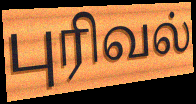
புரிவல்